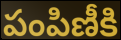
పంపిణీకి